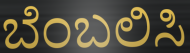
ಬೆಂಬಲಿಸಿ